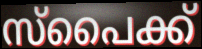
സ്പൈക്ക്